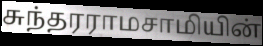
சுந்தரராமசாமியின்